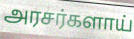
அரசர்களாய்